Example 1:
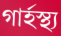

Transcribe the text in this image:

গাৰ্হস্থ্য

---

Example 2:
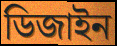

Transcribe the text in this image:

ডিজাইন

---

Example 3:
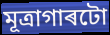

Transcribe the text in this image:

মূত্ৰাগাৰটো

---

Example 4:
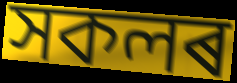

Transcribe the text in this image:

সকলৰ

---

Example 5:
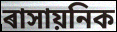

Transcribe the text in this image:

ৰাসায়নিক